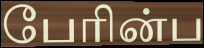
பேரின்ப